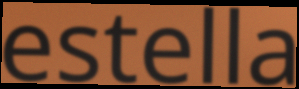
estella